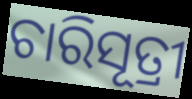
ଚାରିସୂତ୍ରୀ